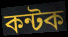
কন্টক